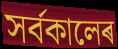
সৰ্বকালেৰ